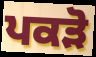
ਪਕੜੋ